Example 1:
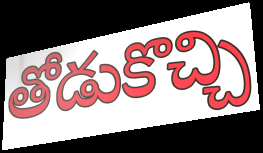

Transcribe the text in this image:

తోడుకొచ్చి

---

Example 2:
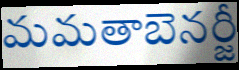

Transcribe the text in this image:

మమతాబెనర్జీ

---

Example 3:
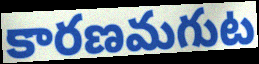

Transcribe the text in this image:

కారణమగుట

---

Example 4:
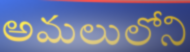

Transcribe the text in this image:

అమలులోని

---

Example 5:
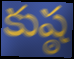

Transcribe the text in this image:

కుష్ఠ